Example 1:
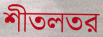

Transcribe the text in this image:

শীতলতর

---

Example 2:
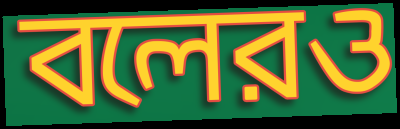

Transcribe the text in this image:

বলেরও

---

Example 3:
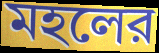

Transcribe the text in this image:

মহলের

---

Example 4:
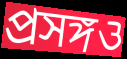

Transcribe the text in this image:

প্রসঙ্গও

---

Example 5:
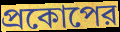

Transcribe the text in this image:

প্রকোপের